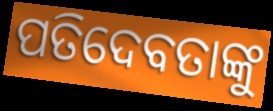
ପତିଦେବତାଙ୍କୁ